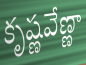
కృష్ణవేణ్ణా